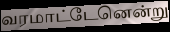
வரமாட்டேனென்று